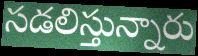
సడలిస్తున్నారు